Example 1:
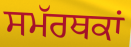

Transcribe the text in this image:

ਸਮੱਰਥਕਾਂ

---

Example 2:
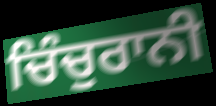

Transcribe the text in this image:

ਚਿੰਚੁਰਾਨੀ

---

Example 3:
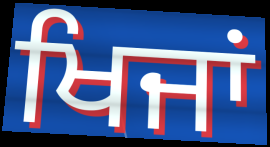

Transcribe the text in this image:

ਖਿਜਾਂ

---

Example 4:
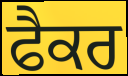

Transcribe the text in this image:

ਫੈਕਰ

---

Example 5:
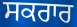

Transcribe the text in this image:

ਸਕਰਾਰ